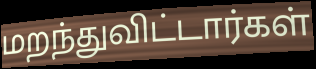
மறந்துவிட்டார்கள்